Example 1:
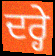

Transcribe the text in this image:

ਦਰ੍ਹੇ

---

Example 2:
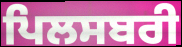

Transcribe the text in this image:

ਪਿਲਸਬਰੀ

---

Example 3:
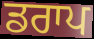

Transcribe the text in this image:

ਡਰਾਪ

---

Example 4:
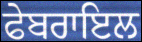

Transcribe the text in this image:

ਫੇਬਰਾਇਲ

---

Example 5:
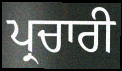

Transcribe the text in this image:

ਪ੍ਰਚਾਰੀ